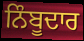
ਨਿੰਬੂਦਾਰ